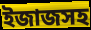
ইজাজসহ